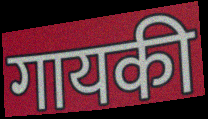
गायकी